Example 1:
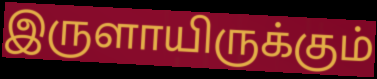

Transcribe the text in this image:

இருளாயிருக்கும்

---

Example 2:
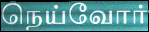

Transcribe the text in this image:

நெய்வோர்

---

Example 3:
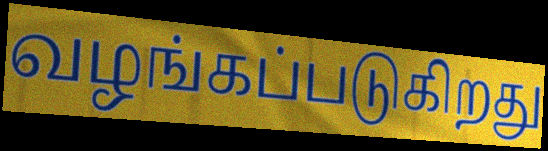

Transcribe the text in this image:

வழங்கப்படுகிறது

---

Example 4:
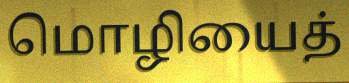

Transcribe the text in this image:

மொழியைத்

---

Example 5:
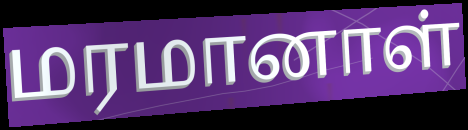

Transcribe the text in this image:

மரமானாள்